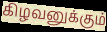
கிழவனுக்கும்